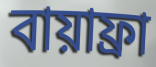
বায়াফ্রা